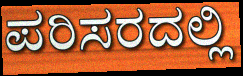
ಪರಿಸರದಲ್ಲಿ